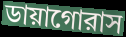
ডায়াগোরাস